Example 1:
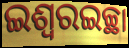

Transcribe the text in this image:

ଇଶ୍ୱରଇଚ୍ଛା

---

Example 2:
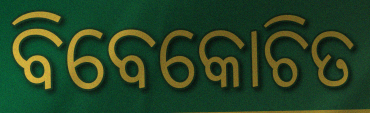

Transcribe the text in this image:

ବିବେକୋଚିତ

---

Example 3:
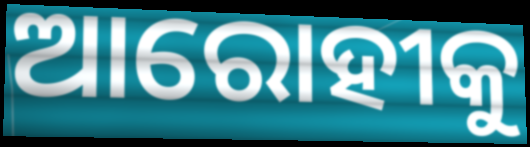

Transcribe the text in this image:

ଆରୋହୀକୁ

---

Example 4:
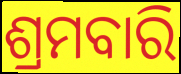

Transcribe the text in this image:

ଶ୍ରମବାରି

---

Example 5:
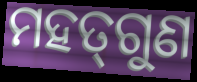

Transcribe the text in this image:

ମହତ୍‍ଗୁଣ